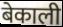
बेकाली